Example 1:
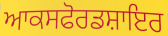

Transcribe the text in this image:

ਆਕਸਫੋਰਡਸ਼ਾਇਰ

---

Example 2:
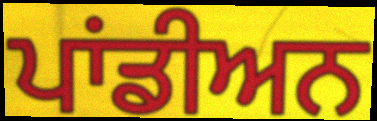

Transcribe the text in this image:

ਪਾਂਡੀਅਨ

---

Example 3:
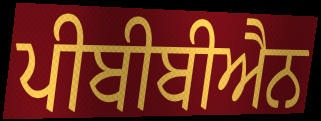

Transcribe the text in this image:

ਪੀਬੀਬੀਐਨ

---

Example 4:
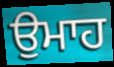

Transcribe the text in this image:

ਉਮਾਹ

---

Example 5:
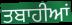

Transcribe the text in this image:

ਤਬਾਹੀਆਂ